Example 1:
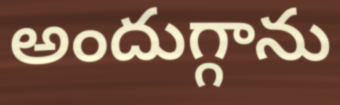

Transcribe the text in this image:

అందుగ్గాను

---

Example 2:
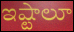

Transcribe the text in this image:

ఇష్టాలూ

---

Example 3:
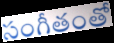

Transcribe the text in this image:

సంగీతంతో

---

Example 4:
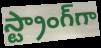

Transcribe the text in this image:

స్ట్రాంగ్‌గా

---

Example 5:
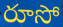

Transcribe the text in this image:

రూసో